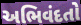
અભિવંદતો